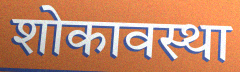
शोकावस्था